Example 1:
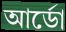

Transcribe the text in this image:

আর্ডো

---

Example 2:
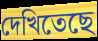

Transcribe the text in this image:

দেখিতেছে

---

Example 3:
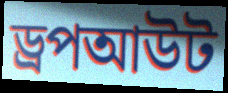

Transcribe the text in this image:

ড্রপআউট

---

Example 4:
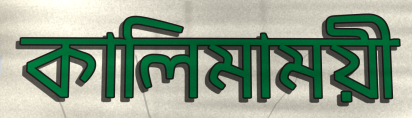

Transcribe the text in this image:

কালিমাময়ী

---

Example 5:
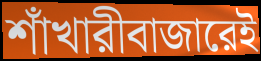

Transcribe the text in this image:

শাঁখারীবাজারেই